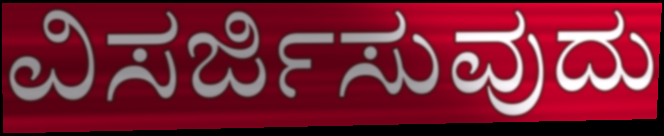
ವಿಸರ್ಜಿಸುವುದು